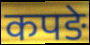
कपङे